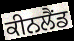
ਕੀਨਲੈਂਡ